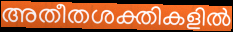
അതീതശക്തികളിൽ